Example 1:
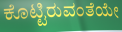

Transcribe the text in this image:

ಕೊಟ್ಟಿರುವಂತೆಯೇ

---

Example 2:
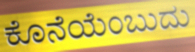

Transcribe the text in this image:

ಕೊನೆಯೆಂಬುದು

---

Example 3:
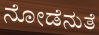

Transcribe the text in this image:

ನೋಡೆನುತೆ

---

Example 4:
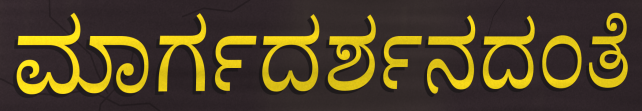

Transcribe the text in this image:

ಮಾರ್ಗದರ್ಶನದಂತೆ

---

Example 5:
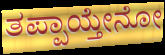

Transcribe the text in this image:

ತಪ್ಪಾಯ್ತೇನೋ